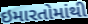
ઇમારતોમાંથી